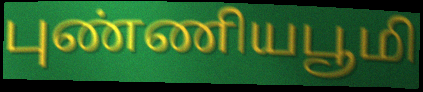
புண்ணியபூமி